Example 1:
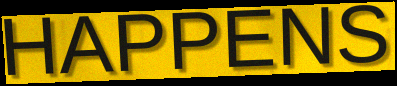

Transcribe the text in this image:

HAPPENS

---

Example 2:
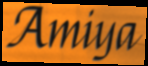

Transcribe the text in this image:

Amiya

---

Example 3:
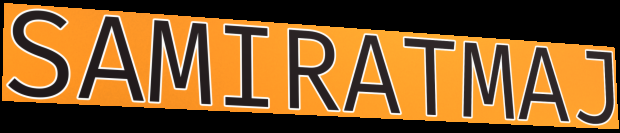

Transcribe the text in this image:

SAMIRATMAJ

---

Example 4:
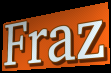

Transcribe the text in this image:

Fraz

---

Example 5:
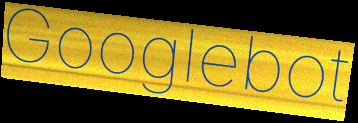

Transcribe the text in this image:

Googlebot